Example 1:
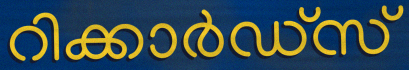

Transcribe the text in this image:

റിക്കാർഡ്സ്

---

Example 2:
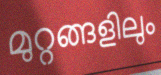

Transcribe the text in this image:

മുറ്റങ്ങളിലും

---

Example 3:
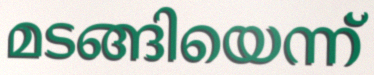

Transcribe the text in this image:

മടങ്ങിയെന്ന്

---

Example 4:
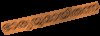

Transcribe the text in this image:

ഭാര്യയുമായിരുന്ന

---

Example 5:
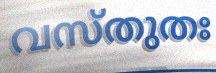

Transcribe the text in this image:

വസ്തുതഃ